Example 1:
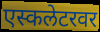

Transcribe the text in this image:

एस्कलेटरवर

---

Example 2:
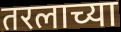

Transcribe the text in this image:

तरलाच्या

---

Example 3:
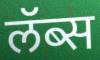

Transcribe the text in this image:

लॅब्स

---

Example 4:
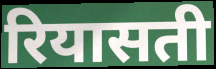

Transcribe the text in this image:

रियासती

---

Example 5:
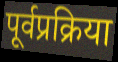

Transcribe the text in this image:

पूर्वप्रक्रिया